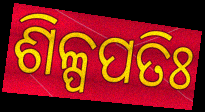
ଶିଳ୍ପପତିଃ